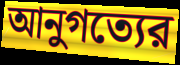
আনুগত্যের